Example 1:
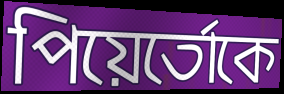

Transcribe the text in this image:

পিয়ের্তোকে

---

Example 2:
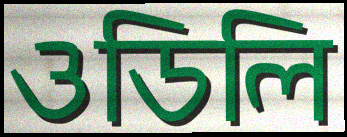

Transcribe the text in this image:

ওডিলি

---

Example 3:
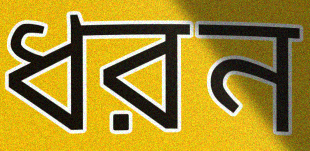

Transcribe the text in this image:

ধরন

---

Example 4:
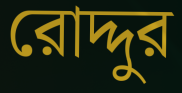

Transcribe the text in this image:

রোদ্দুর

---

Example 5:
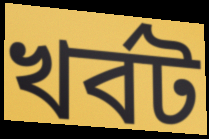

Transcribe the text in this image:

খর্বট